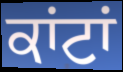
ਕਾਂਟਾਂ